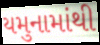
યમુનામાંથી